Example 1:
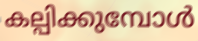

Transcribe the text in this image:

കല്പിക്കുമ്പോൾ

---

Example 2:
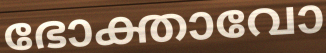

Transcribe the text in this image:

ഭോക്താവോ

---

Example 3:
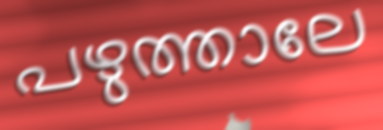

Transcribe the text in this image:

പഴുത്താലേ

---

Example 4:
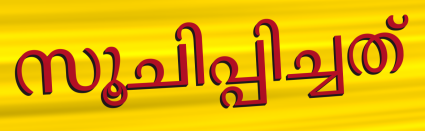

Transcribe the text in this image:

സൂചിപ്പിച്ചത്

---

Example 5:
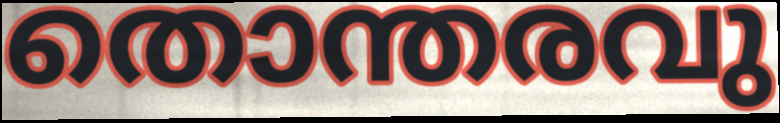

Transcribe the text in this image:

തൊന്തരവു